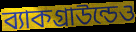
ব্যাকগ্রাউন্ডেও